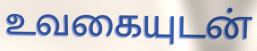
உவகையுடன்